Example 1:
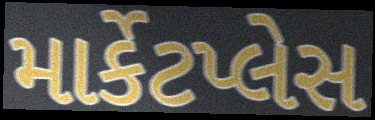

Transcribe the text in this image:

માર્કેટપ્લેસ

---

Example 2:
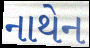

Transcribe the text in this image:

નાથેન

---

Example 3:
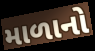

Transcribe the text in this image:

માળાનો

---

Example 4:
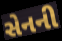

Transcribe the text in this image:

સેનની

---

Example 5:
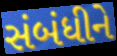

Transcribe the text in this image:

સંબંધીને